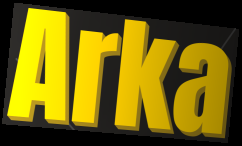
Arka